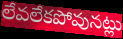
లేవలేకపోవునట్లు